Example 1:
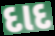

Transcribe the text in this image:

દાદ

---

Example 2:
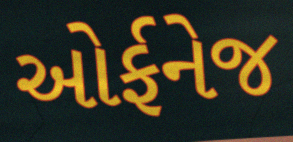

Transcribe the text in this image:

ઓર્ફનેજ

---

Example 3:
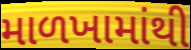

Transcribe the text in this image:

માળખામાંથી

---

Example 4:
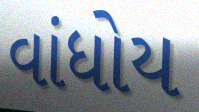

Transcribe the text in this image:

વાંધોય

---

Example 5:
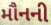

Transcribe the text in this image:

મૌનની